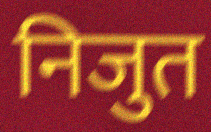
निजुत